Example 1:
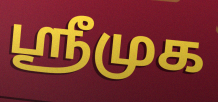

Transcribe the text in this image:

ஸ்ரீமுக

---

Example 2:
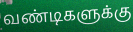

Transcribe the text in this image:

வண்டிகளுக்கு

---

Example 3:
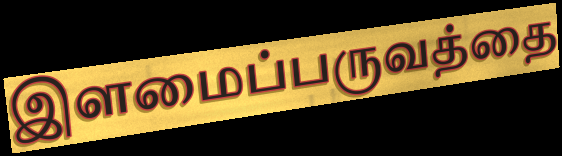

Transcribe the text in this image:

இளமைப்பருவத்தை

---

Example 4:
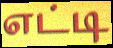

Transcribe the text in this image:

எட்டி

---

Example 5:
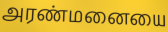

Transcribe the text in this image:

அரண்மனையை